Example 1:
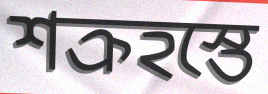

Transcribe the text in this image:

শক্রহস্তে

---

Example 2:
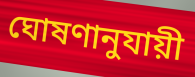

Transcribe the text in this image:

ঘোষণানুযায়ী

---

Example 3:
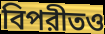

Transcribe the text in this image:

বিপরীতও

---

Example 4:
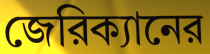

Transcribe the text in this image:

জেরিক্যানের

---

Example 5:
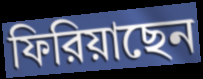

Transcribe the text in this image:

ফিরিয়াছেন